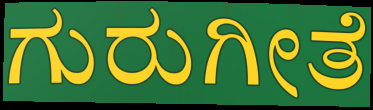
ಗುರುಗೀತೆ